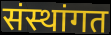
संस्थांगत